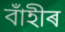
বাঁহীৰ